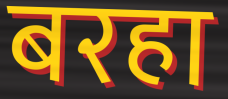
बरहा